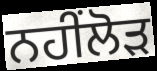
ਨਹੀਂਲੋੜ